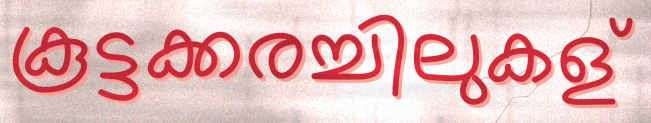
കൂട്ടക്കരച്ചിലുകള്